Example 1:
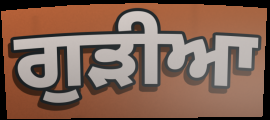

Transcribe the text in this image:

ਗੁੜੀਆ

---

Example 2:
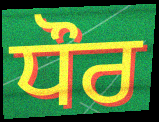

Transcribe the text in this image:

ਧੌਰ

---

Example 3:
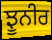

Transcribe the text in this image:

ਝੂਨੀਰ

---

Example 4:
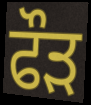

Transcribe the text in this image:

ਫੌਡ਼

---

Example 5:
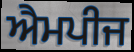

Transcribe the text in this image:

ਐਮਪੀਜ